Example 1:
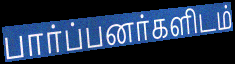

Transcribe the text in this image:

பார்ப்பனர்களிடம்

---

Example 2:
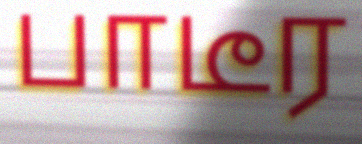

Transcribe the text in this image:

பாடீர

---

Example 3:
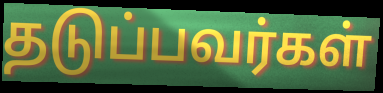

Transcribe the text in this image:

தடுப்பவர்கள்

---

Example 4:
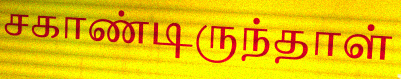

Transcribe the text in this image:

சகாண்டிருந்தாள்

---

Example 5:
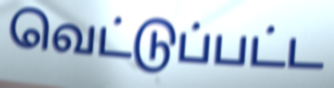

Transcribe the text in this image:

வெட்டுப்பட்ட